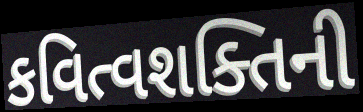
કવિત્વશક્તિની